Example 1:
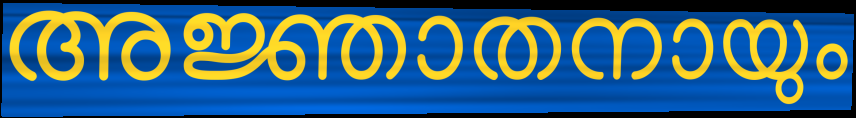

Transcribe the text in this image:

അജ്ഞാതനായും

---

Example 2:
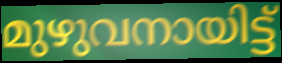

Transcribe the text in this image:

മുഴുവനായിട്ട്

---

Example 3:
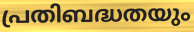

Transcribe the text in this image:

പ്രതിബദ്ധതയും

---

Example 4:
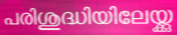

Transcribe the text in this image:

പരിശുദ്ധിയിലേയ്ക്കു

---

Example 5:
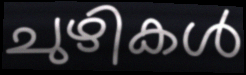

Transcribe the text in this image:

ചുഴികൾ